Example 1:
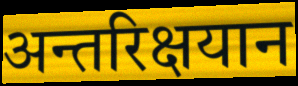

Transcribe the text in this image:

अन्तरिक्षयान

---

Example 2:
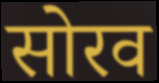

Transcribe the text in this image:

सोरव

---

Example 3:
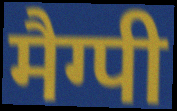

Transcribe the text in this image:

मैग्पी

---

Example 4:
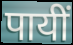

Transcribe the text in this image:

पायीं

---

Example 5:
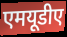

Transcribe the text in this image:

एमयूडीए